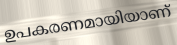
ഉപകരണമായിയാണ്